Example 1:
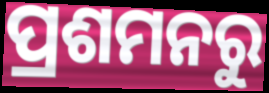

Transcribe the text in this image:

ପ୍ରଶମନରୁ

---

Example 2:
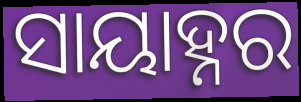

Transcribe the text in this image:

ସାୟାହ୍ନର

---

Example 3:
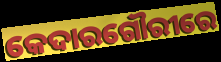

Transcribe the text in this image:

କେଦାରଗୌରୀରେ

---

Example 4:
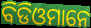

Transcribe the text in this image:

ବିଡିଓମାନେ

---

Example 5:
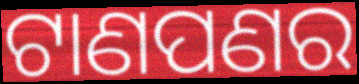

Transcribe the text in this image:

ଟାଣପଣର